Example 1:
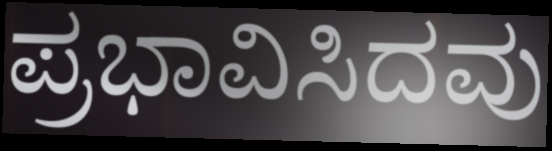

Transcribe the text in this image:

ಪ್ರಭಾವಿಸಿದವು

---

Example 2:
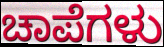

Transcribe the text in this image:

ಚಾಪೆಗಳು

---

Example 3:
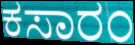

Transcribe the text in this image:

ಕಸಾರಂ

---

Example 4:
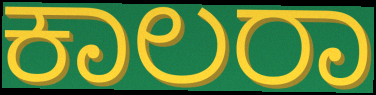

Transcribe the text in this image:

ಕಾಲರಾ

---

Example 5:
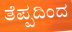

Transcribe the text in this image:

ತೆಪ್ಪದಿಂದ